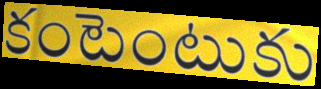
కంటెంటుకు